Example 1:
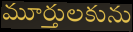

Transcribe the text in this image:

మూర్తులకును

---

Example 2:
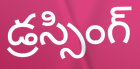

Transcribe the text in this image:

డ్రస్సింగ్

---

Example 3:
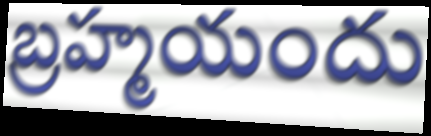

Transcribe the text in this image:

బ్రహ్మయందు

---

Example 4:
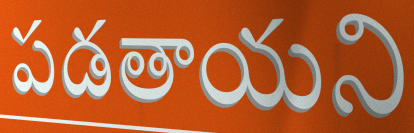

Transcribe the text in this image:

పడతాయని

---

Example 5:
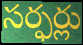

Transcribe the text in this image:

సర్ఫర్లు